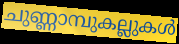
ചുണ്ണാമ്പുകല്ലുകൾ